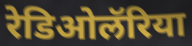
रेडिओलॅरिया